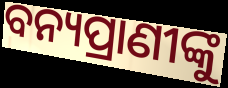
ବନ୍ୟପ୍ରାଣୀଙ୍କୁ